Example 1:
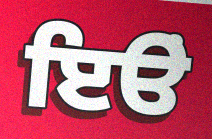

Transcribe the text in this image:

ਇੳਂ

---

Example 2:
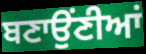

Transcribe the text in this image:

ਬਣਾਉਂਣੀਆਂ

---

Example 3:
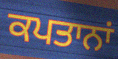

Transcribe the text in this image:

ਕਪਤਾਨਾਂ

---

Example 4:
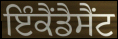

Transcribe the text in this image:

ਇੰਕੈਂਡੈਸੈਂਟ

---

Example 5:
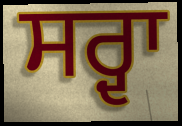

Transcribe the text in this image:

ਸਰ੍ਦਾ